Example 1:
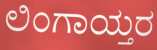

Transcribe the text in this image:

ಲಿಂಗಾಯ್ತರ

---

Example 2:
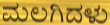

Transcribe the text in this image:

ಮಲಗಿದಳು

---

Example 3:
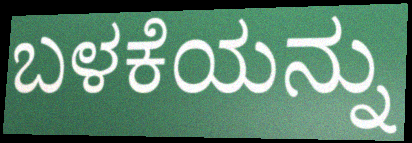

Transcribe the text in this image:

ಬಳಕೆಯನ್ನು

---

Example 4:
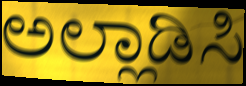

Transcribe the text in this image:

ಅಲ್ಲಾಡಿಸಿ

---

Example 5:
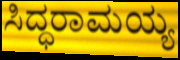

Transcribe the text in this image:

ಸಿದ್ಧರಾಮಯ್ಯ